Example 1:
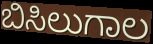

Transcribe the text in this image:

ಬಿಸಿಲುಗಾಲ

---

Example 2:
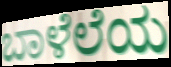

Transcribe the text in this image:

ಬಾಳೆಲೆಯ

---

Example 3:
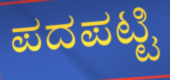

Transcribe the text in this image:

ಪದಪಟ್ಟಿ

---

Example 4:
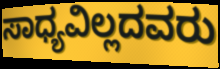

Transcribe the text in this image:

ಸಾಧ್ಯವಿಲ್ಲದವರು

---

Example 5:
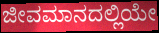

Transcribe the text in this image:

ಜೀವಮಾನದಲ್ಲಿಯೇ